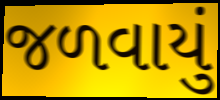
જળવાયું